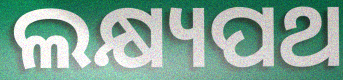
ଲକ୍ଷ୍ୟପଥ